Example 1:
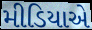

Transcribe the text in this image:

મીડિયાએ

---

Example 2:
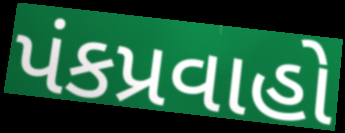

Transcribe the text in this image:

પંકપ્રવાહો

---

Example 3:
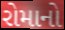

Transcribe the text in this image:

રોમાનો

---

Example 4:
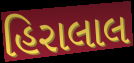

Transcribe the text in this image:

હિરાલાલ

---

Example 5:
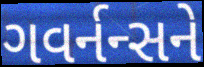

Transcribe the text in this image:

ગવર્નન્સને